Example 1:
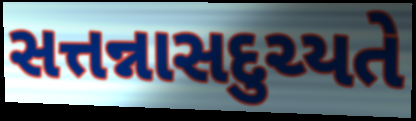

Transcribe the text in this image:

સત્તન્નાસદુચ્યતે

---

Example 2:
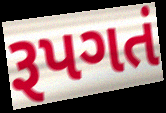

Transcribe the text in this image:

રૂપગતં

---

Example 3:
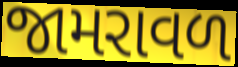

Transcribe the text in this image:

જામરાવળ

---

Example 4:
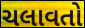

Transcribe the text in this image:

ચલાવતો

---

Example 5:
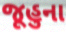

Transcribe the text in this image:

જૂહુના